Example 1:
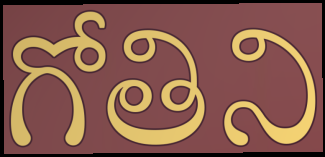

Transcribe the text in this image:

గోతిని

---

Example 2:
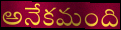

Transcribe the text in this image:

అనేకమంది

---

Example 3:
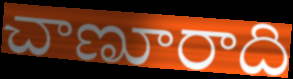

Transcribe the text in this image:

చాణూరాది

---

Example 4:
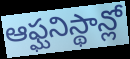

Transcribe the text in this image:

ఆఫ్ఘనిస్థాన్లో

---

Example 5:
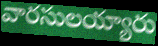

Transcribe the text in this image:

వారసులయ్యారు